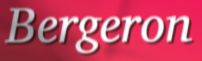
Bergeron